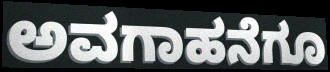
ಅವಗಾಹನೆಗೂ